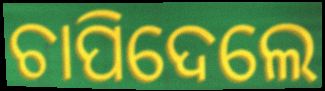
ଚାପିଦେଲେ